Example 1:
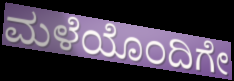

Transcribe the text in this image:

ಮಳೆಯೊಂದಿಗೇ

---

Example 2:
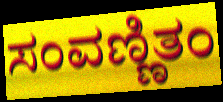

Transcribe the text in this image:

ಸಂವಣ್ಣಿತಂ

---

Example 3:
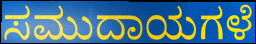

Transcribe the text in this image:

ಸಮುದಾಯಗಳೆ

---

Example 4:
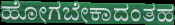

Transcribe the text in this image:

ಹೋಗಬೇಕಾದಂತಹ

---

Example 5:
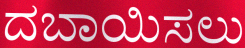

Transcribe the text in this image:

ದಬಾಯಿಸಲು